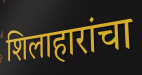
शिलाहारांचा